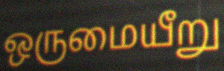
ஒருமையீறு